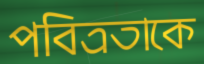
পবিত্রতাকে